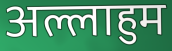
अल्लाहुम